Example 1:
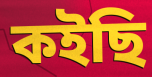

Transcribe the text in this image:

কইছি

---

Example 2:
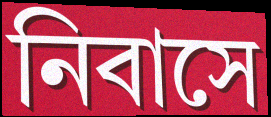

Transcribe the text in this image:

নিবাসে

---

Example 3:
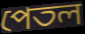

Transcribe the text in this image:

পেতল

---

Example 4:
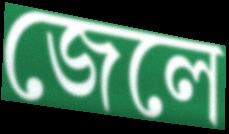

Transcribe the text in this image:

জেলে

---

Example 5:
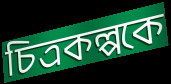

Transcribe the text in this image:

চিত্রকল্পকে